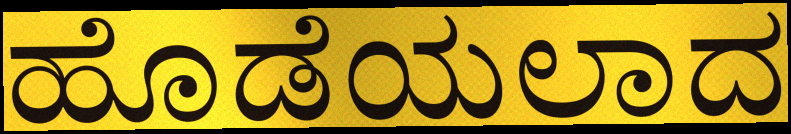
ಹೊಡೆಯಲಾದ